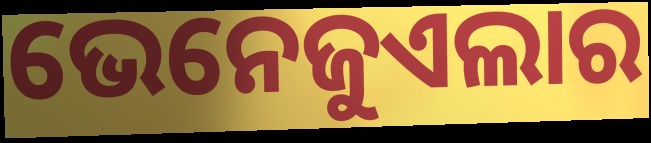
ଭେନେଜୁଏଲାର